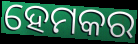
ହେମକର